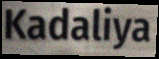
Kadaliya